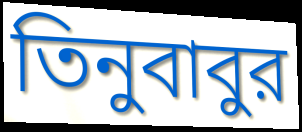
তিনুবাবুর